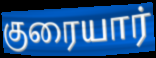
குரையார்